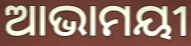
ଆଭାମୟୀ